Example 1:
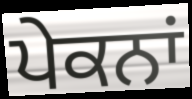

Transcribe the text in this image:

ਪੇਕਨਾਂ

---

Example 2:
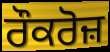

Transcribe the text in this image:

ਰੌਕਰੋਜ਼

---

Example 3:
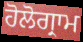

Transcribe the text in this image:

ਹੋਲੋਗ੍ਰਾਮ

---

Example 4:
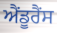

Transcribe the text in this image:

ਐਂਡੂਰੈਂਸ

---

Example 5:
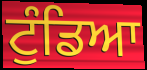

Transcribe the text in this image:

ਟੁੰਡਿਆ